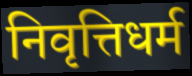
निवृत्तिधर्म